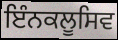
ਇੰਨਕਲੂਸਿਵ